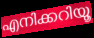
എനിക്കറിയൂ